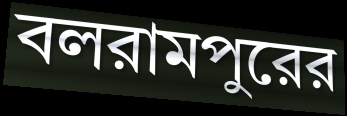
বলরামপুরের